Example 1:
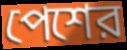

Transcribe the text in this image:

পেশের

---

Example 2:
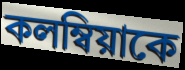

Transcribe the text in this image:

কলম্বিয়াকে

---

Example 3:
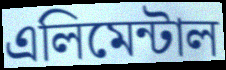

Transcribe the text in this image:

এলিমেন্টাল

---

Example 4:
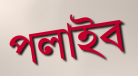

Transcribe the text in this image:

পলাইব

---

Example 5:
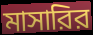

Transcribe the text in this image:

মাসারির